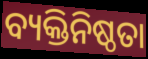
ବ୍ୟକ୍ତିନିଷ୍ଠତା